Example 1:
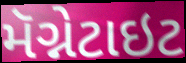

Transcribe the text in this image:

મૅગ્નેટાઇટ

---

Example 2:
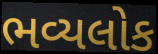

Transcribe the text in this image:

ભવ્યલોક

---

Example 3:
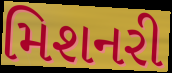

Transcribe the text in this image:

મિશનરી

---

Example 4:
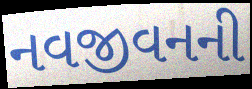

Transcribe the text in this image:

નવજીવનની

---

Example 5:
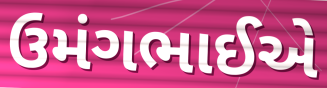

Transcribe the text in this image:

ઉમંગભાઈએ